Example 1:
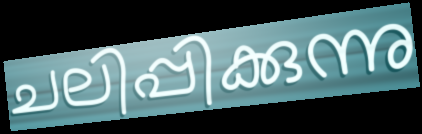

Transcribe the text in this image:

ചലിപ്പിക്കുന്നു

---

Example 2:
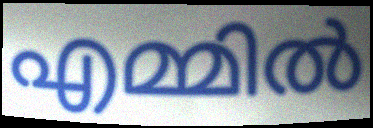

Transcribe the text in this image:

എമ്മിൽ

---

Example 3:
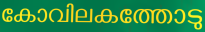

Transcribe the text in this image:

കോവിലകത്തോടു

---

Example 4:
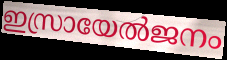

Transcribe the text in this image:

ഇസ്രായേൽജനം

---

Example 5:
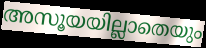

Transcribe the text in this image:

അസൂയയില്ലാതെയും